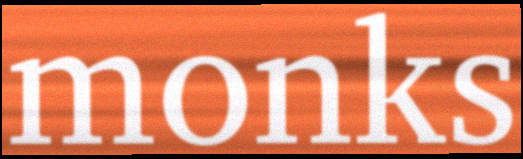
monks